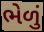
ભેળું